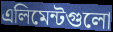
এলিমেন্টগুলো